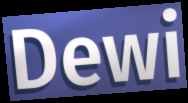
Dewi